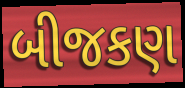
બીજકણ